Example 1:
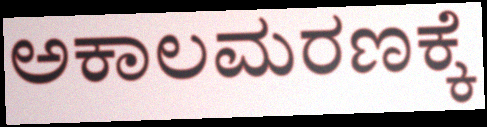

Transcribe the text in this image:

ಅಕಾಲಮರಣಕ್ಕೆ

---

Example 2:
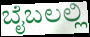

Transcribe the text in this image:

ಬೈಬಲಲ್ಲಿ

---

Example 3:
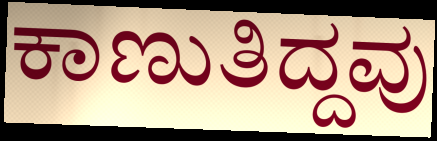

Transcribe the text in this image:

ಕಾಣುತಿದ್ದವು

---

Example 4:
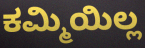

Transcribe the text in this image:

ಕಮ್ಮಿಯಿಲ್ಲ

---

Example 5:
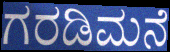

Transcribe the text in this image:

ಗರಡಿಮನೆ